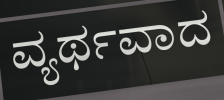
ವ್ಯರ್ಥವಾದ